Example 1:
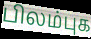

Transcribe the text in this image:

பிலம்புக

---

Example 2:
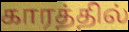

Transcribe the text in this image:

காரத்தில்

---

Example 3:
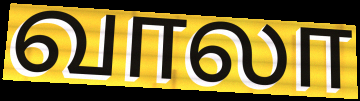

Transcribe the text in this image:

வாலா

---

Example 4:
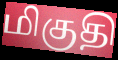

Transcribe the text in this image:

மிகுதி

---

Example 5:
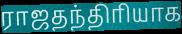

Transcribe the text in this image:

ராஜதந்திரியாக